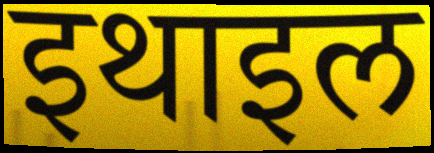
इथाइल